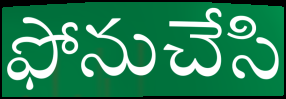
ఫోనుచేసి